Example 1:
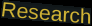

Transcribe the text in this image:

Research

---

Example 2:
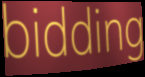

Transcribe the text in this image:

bidding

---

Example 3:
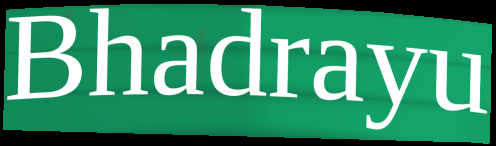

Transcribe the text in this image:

Bhadrayu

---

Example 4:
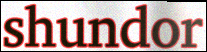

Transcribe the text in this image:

shundor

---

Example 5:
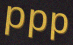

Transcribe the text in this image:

ppp